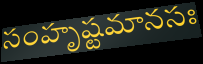
సంహృష్టమానసః